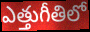
ఎత్తుగీతిలో